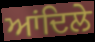
ਆਂਦਿਲੇ